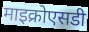
माइक्रोएसडी